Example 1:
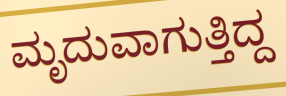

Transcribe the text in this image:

ಮೃದುವಾಗುತ್ತಿದ್ದ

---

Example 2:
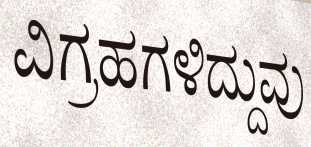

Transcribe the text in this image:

ವಿಗ್ರಹಗಳಿದ್ದುವು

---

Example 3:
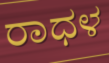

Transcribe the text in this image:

ರಾಧಳ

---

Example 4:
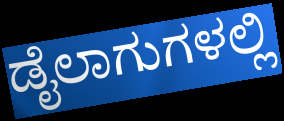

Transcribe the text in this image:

ಡೈಲಾಗುಗಳಲ್ಲಿ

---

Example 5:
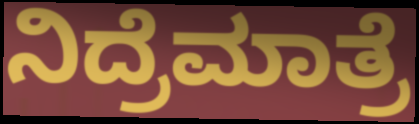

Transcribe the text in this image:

ನಿದ್ರೆಮಾತ್ರೆ